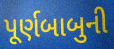
પૂર્ણબાબુની